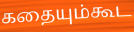
கதையும்கூட